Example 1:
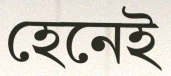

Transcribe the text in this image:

হেনেই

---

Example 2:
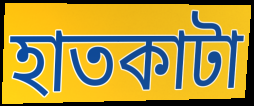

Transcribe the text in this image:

হাতকাটা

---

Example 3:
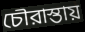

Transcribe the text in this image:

চৌরাস্তায়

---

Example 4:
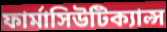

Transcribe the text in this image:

ফার্মাসিউটিক্যাল্স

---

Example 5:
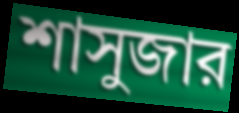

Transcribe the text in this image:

শাসুজার